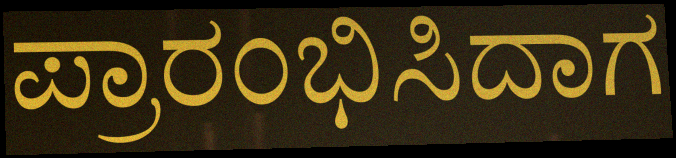
ಪ್ರಾರಂಭಿಸಿದಾಗ